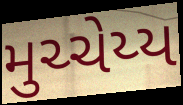
મુચ્ચેય્ય